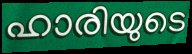
ഹാരിയുടെ